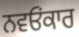
ਨਵਓਂਕਾਰ